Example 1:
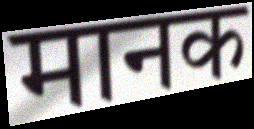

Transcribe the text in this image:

मानक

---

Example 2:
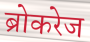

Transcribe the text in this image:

ब्रोकरेज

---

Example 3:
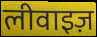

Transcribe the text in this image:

लीवाइज़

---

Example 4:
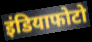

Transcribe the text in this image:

इंडियाफोटो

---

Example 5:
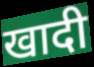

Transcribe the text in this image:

खादी